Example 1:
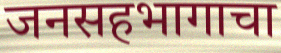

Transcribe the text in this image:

जनसहभागाचा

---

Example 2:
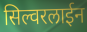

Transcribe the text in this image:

सिल्वरलाईन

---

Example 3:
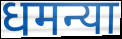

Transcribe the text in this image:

धमन्या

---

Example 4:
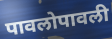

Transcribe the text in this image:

पावलोपावली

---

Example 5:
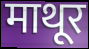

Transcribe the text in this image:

माथूर